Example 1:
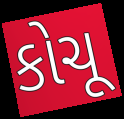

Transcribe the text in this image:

કોચૂ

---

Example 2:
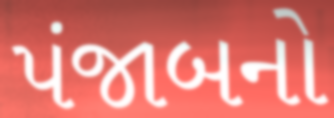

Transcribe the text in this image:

પંજાબનો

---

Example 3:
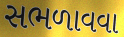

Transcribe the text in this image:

સભળાવવા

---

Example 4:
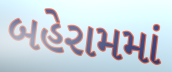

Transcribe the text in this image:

બહેરામમાં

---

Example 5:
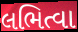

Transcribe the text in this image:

લભિત્વા